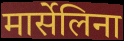
मार्सेलिना